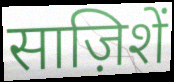
साज़िशें